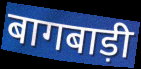
बागबाड़ी